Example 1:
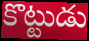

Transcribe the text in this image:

కొట్టుడు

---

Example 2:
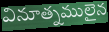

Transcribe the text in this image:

వినూత్నములైన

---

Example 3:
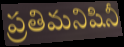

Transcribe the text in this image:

ప్రతిమనిషినీ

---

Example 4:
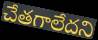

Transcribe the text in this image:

చేతగాలేదని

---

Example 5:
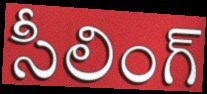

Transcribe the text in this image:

సీలింగ్